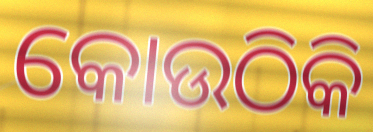
କୋଉଠିକି